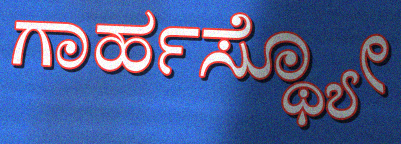
ಗಾರ್ಹಸ್ಥ್ಯೋ